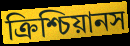
ক্রিশ্চিয়ানস